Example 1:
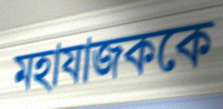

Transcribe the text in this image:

মহাযাজককে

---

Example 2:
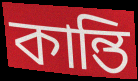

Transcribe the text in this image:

কান্তি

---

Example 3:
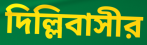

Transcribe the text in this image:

দিল্লিবাসীর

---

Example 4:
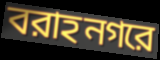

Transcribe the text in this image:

বরাহনগরে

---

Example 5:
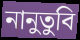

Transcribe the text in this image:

নানুতুবি